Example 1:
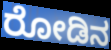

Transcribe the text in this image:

ರೋಡಿನ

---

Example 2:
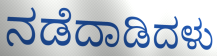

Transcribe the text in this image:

ನಡೆದಾಡಿದಳು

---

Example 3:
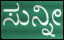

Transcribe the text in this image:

ಸುನ್ನೀ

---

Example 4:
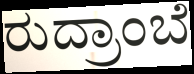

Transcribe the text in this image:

ರುದ್ರಾಂಬೆ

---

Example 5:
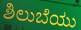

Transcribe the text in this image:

ಶಿಲುಬೆಯು